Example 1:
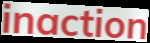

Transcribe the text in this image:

inaction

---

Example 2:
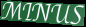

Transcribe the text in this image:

MINUS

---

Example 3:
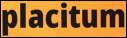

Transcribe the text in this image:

placitum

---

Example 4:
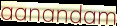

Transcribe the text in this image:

aanandam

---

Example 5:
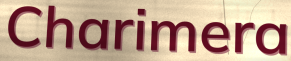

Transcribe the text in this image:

Charimera